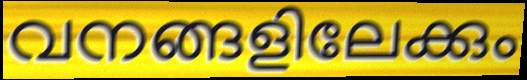
വനങ്ങളിലേക്കും